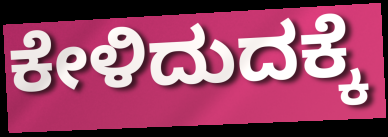
ಕೇಳಿದುದಕ್ಕೆ